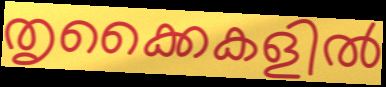
തൃക്കൈകളിൽ